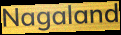
Nagaland